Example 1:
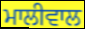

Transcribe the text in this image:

ਮਾਲੀਵਾਲ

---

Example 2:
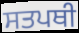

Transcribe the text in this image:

ਸਤਪਥੀ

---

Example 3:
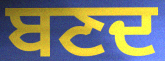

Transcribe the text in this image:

ਬਣਦ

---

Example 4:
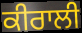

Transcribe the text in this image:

ਕੀਰਾਲੀ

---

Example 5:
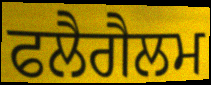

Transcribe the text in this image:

ਫਲੈਗੈਲਮ